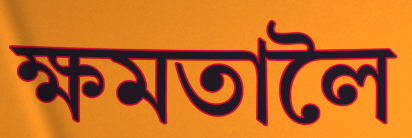
ক্ষমতালৈ